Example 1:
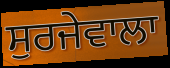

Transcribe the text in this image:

ਸੁਰਜੇਵਾਲਾ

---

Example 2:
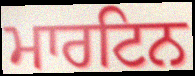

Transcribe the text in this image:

ਮਾਰਟਿਨ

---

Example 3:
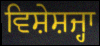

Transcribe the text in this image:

ਵਿਸ਼ੇਸ਼ਜ੍ਹਾ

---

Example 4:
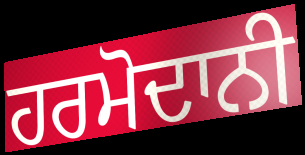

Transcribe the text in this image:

ਹਰਮੋਦਾਨੀ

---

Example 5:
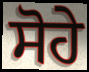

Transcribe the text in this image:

ਸੋਹੇ